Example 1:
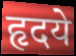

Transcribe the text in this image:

हृदये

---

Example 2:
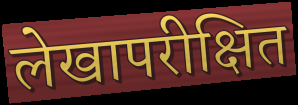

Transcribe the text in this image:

लेखापरीक्षित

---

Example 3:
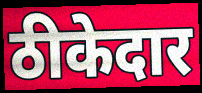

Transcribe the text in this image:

ठीकेदार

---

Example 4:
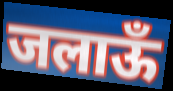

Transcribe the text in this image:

जलाऊँ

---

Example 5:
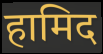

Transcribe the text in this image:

हामिद